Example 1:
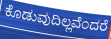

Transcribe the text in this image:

ಕೊಡುವುದಿಲ್ಲವೆಂದರೆ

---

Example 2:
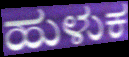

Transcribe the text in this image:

ಹುಳುಕ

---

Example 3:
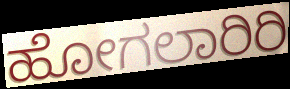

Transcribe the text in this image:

ಹೋಗಲಾರಿರಿ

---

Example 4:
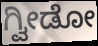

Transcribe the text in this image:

ಗ್ವೀಡೋ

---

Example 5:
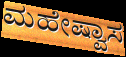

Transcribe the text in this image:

ಮಹೇಷ್ವಾಸ